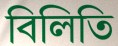
বিলিতি